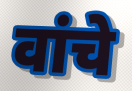
वांचे